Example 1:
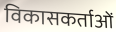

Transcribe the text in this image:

विकासकर्ताओं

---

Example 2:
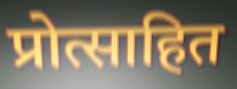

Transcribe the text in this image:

प्रोत्साहित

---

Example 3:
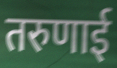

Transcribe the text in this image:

तरुणाई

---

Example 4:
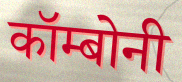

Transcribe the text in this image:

कॉम्बोनी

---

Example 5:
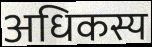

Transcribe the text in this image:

अधिकस्य